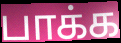
பாக்க